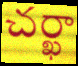
చర్ఖా